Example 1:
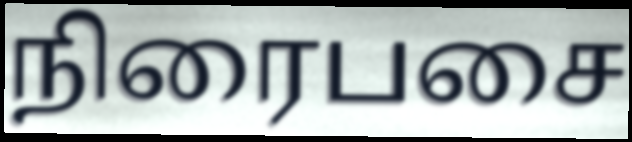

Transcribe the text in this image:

நிரைபசை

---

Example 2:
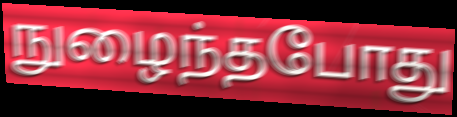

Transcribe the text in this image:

நுழைந்தபோது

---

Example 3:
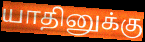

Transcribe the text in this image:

யாதினுக்கு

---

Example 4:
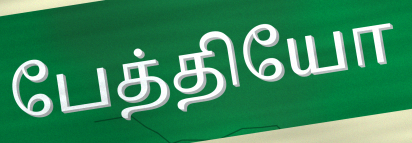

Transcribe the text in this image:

பேத்தியோ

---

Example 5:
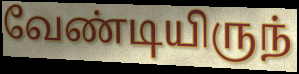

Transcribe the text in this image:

வேண்டியிருந்